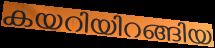
കയറിയിറങ്ങിയ